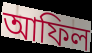
আফিল